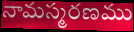
నామస్మరణము